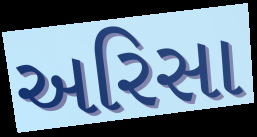
અરિસા